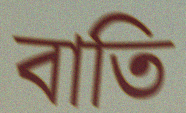
বাতি